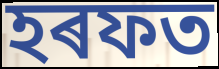
হৰফত